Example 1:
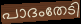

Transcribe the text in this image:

പാദംതേടി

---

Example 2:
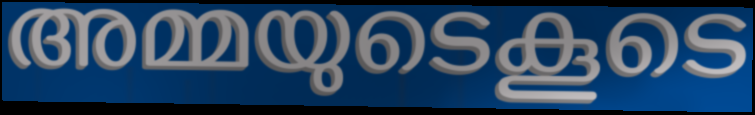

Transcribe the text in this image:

അമ്മയുടെകൂടെ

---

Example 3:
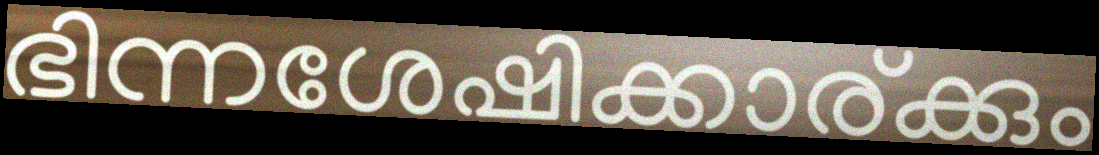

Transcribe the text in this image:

ഭിന്നശേഷിക്കാര്ക്കും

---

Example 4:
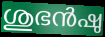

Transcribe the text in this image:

ശുഭൻഷു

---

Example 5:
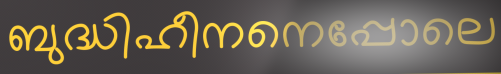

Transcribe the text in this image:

ബുദ്ധിഹീനനെപ്പോലെ